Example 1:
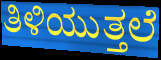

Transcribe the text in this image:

ತಿಳಿಯುತ್ತಲೆ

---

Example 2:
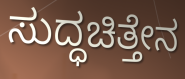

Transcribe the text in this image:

ಸುದ್ಧಚಿತ್ತೇನ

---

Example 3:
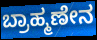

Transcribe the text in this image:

ಬ್ರಾಹ್ಮಣೇನ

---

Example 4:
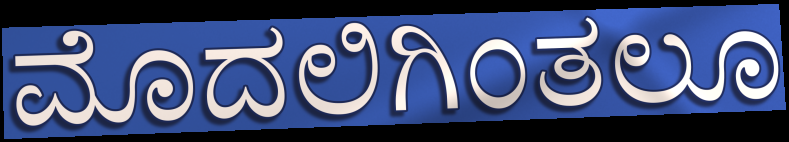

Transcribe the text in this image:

ಮೊದಲಿಗಿಂತಲೂ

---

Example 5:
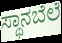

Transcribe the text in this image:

ಸ್ಥಾನಬೆಲೆ